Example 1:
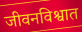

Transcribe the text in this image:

जीवनविश्वात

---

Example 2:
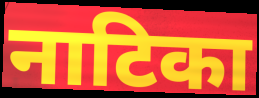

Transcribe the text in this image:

नाटिका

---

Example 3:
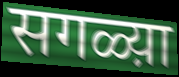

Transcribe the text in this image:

सगळ्य़ा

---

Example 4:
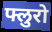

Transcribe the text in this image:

फ्लुरो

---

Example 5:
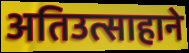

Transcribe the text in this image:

अतिउत्साहाने